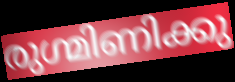
രുഗ്മിണിക്കു